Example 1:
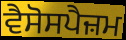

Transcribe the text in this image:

ਵੈਸੋਸਪੈਜ਼ਮ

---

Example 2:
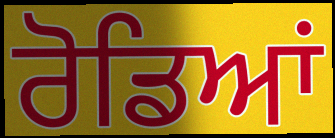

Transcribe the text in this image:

ਰੋਡਿਆਂ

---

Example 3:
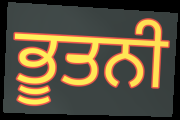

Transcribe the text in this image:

ਭੂਤਨੀ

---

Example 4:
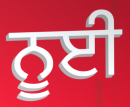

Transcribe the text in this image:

ਨੂਈ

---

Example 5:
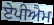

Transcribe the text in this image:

ਏਪੀਐਮ